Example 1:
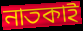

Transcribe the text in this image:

নাতকাই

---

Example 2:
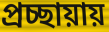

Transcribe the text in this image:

প্রচ্ছায়ায়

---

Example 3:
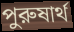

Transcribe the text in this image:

পুরুষার্থ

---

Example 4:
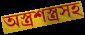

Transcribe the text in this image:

অস্ত্রশস্ত্রসহ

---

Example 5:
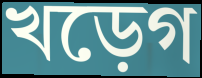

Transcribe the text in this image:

খড়েগ